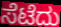
ಸೆಟೆದು